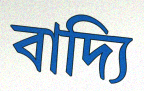
বাদ্যি